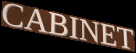
CABINET